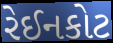
રેઈનકોટ